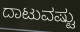
ದಾಟುವಷ್ಟು